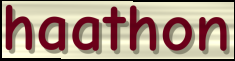
haathon